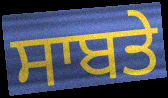
ਸਾਬਤੇ